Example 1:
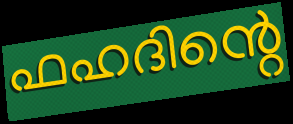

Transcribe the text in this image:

ഫഹദിന്റെ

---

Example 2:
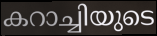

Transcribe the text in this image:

കറാച്ചിയുടെ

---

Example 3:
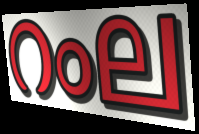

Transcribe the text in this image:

റംല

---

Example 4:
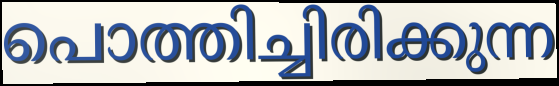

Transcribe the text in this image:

പൊത്തിച്ചിരിക്കുന്ന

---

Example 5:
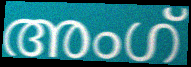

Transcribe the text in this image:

അംഗ്